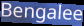
Bengalee